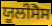
ਯੂਲੀਸੈਸ